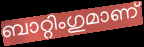
ബാറ്റിംഗുമാണ്